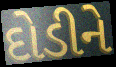
દોડીને